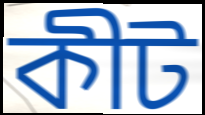
কীট